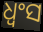
ଧ୍ଵଂସ